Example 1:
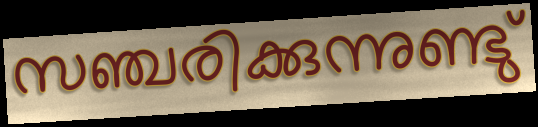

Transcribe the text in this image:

സഞ്ചരിക്കുന്നുണ്ടു്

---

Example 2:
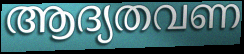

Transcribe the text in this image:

ആദ്യതവണ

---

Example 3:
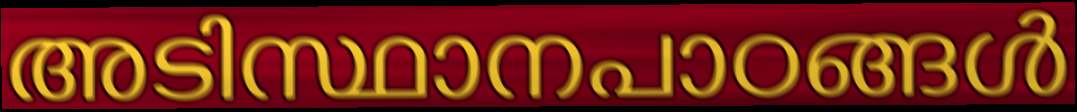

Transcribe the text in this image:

അടിസ്ഥാനപാഠങ്ങൾ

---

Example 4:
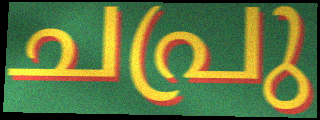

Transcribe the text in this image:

ചപ്രു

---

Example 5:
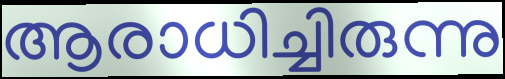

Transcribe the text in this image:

ആരാധിച്ചിരുന്നു